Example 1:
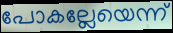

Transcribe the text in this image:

പോകല്ലേയെന്ന്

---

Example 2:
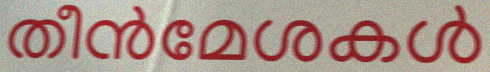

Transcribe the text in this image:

തീൻമേശകൾ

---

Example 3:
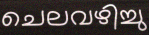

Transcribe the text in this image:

ചെലവഴിച്ചു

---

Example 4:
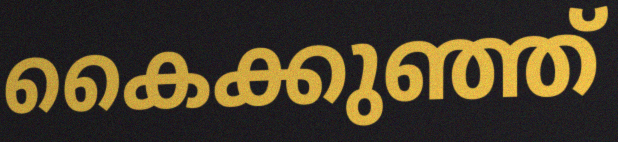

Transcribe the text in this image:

കൈക്കുഞ്ഞ്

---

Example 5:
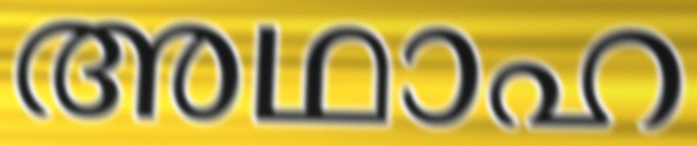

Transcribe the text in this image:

അഥാഹ